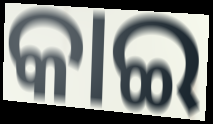
କାଇ